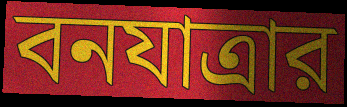
বনযাত্রার